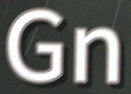
Gn